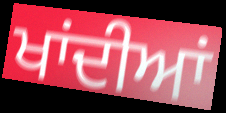
ਖਾਂਦੀਆਂ